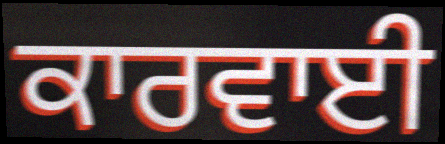
ਕਾਰਵਾਈ